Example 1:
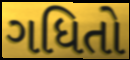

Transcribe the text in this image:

ગધિતો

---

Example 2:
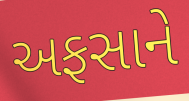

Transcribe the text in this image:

અફસાને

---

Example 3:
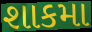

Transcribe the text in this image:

શાકમા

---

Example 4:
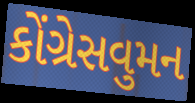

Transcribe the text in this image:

કોંગ્રેસવુમન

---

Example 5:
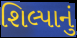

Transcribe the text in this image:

શિલ્પાનું